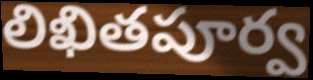
లిఖితపూర్వ